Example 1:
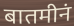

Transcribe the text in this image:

बातमीनं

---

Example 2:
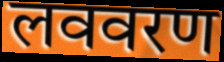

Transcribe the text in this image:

लववरण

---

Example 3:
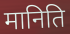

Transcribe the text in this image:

मानिति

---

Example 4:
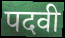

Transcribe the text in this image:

पदवी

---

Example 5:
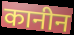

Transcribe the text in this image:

कानीन